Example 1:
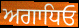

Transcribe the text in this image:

ਅਗਾਧਿਓ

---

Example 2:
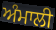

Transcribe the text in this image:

ਅੰਮਾਲੀ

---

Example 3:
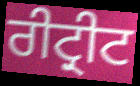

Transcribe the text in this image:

ਰੀਟ੍ਰੀਟ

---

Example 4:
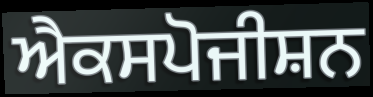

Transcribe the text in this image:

ਐਕਸਪੋਜੀਸ਼ਨ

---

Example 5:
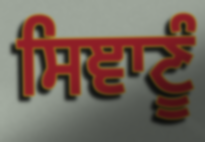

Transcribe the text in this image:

ਸਿਞਾਣੂੰ